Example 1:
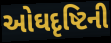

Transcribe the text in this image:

ઓઘદૃષ્ટિની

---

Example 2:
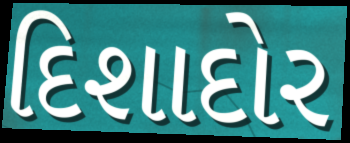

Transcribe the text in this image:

દિશાદોર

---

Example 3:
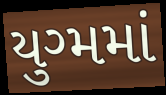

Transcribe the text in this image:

યુગ્મમાં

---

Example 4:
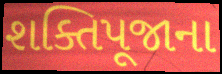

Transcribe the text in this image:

શક્તિપૂજાના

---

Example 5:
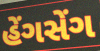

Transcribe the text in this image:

હેંગસેંગ